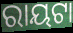
ରାୟଟା